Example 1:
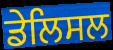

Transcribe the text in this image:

ਡੇਲਿਸਲ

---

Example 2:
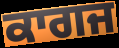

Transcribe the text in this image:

ਕਾਗਜ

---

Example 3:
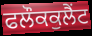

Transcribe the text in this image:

ਫਲੌਕਕੁਲੈਂਟ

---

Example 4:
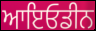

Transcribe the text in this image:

ਆਇਓਡੀਨ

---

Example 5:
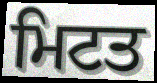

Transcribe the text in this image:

ਮਿਟਤ